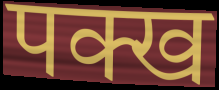
पक्ख